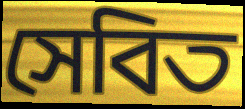
সেবিত